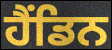
ਹੈਂਡਿਨ